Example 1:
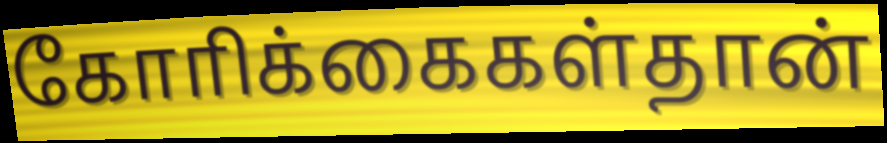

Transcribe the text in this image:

கோரிக்கைகள்தான்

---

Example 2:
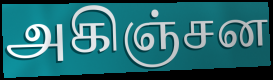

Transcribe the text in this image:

அகிஞ்சன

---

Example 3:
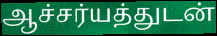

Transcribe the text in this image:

ஆச்சர்யத்துடன்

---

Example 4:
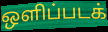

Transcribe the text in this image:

ஒளிப்படக்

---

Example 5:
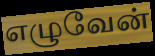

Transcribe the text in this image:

எழுவேன்